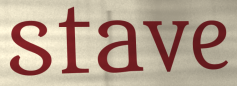
stave